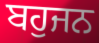
ਬਹੁਜਨ